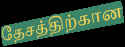
தேசத்திற்கான